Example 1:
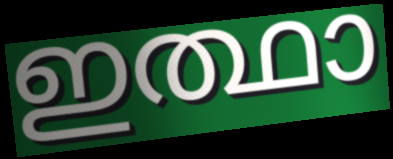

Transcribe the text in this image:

ഇത്ഥാ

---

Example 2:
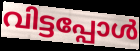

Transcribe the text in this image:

വിട്ടപ്പോൾ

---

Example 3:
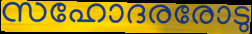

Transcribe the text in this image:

സഹോദരരോടു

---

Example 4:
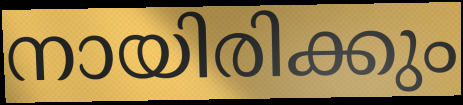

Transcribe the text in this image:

നായിരിക്കും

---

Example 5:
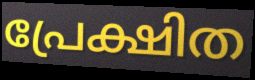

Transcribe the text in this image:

പ്രേക്ഷിത